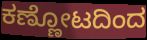
ಕಣ್ಣೋಟದಿಂದ